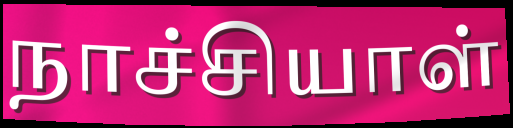
நாச்சியாள்